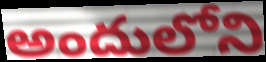
అందులోని